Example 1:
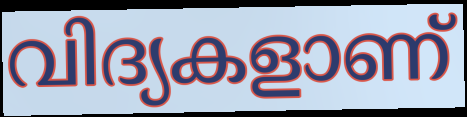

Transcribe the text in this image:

വിദ്യകളാണ്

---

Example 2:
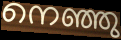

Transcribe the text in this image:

നെഞ്ഞു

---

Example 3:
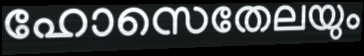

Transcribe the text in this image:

ഹോസെതേലയും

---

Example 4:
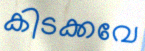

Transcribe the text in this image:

കിടക്കവേ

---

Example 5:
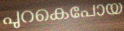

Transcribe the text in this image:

പുറകെപോയ